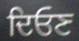
ਦਿਓਣ